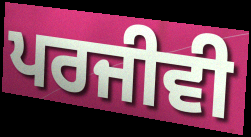
ਪਰਜੀਵੀ